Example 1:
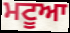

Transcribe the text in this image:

ਮਟੂਆ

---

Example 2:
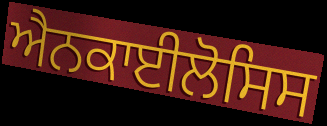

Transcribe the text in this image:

ਐਨਕਾਈਲੋਸਿਸ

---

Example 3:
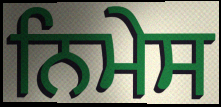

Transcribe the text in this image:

ਨਿਮੇਸ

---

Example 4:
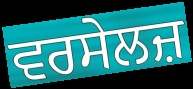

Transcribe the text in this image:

ਵਰਸੇਲਜ਼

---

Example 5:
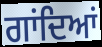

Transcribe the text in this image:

ਗਾਂਦਿਆਂ